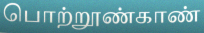
பொற்றூண்காண்